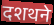
दशथने